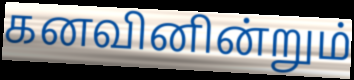
கனவினின்றும்